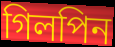
গিলপিন